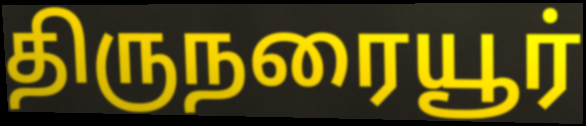
திருநரையூர்